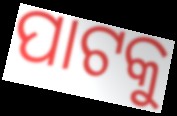
ପାଟକୁ